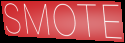
SMOTE